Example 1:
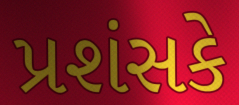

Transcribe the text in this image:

પ્રશંસકે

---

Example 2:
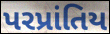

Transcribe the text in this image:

પરપ્રાંતિય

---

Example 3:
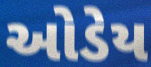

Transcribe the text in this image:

ઓડેય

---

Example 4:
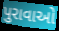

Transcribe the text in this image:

પુરાવાઓ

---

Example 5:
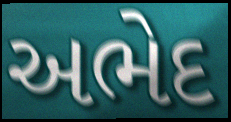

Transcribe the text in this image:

અભેદ